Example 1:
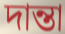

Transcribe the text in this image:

দান্তা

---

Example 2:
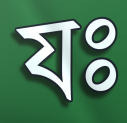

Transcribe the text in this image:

যঃ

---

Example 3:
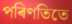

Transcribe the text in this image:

পৰিণতিতে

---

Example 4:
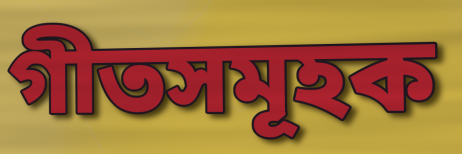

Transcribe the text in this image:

গীতসমূহক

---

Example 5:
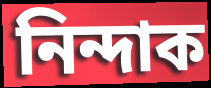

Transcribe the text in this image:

নিন্দাক